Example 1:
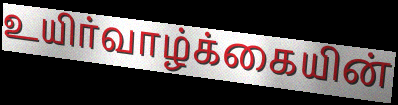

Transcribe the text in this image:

உயிர்வாழ்க்கையின்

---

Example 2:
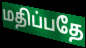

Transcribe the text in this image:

மதிப்பதே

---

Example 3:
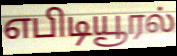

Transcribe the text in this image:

எபிடியூரல்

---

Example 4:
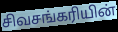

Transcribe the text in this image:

சிவசங்கரியின்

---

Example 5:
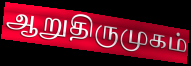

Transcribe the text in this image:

ஆறுதிருமுகம்